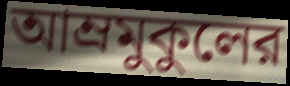
আম্রমুকুলের